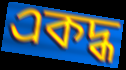
একদ্ধ